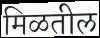
मिळतील